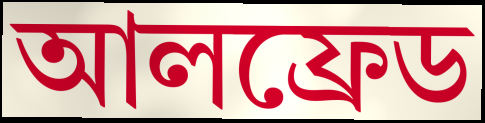
আলফ্রেড